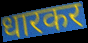
धारकर